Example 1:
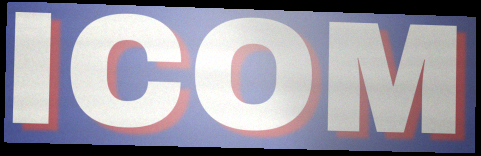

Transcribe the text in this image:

ICOM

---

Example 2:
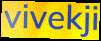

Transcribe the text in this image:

vivekji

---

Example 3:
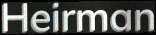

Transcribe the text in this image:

Heirman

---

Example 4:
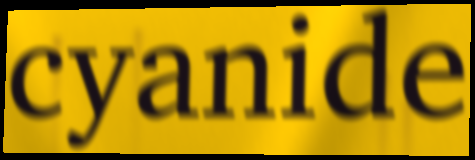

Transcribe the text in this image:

cyanide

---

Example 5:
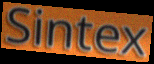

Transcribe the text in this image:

Sintex